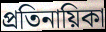
প্রতিনায়িকা